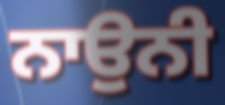
ਨਾਉਨੀ